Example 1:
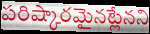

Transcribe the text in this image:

పరిష్కారమైనట్లేనని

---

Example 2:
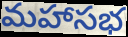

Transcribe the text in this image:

మహాసభ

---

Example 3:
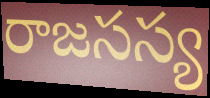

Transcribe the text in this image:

రాజసస్య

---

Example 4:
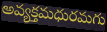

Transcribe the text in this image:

అవ్యక్తమధురమగు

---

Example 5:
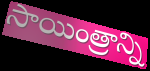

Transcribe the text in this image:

సాయింత్రాన్ని